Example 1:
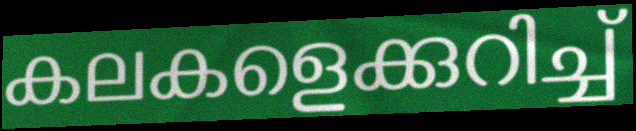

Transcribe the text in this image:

കലകളെക്കുറിച്ച്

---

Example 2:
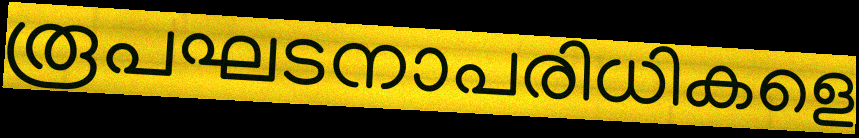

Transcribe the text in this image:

രൂപഘടനാപരിധികളെ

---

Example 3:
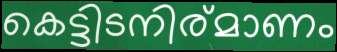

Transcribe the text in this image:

കെട്ടിടനിര്മാണം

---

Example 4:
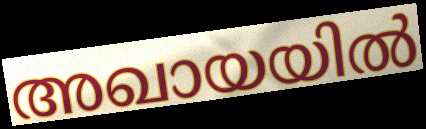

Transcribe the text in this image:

അഖായയിൽ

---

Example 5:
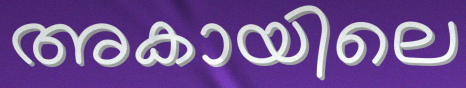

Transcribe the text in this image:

അകായിലെ